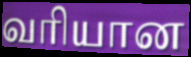
வரியான